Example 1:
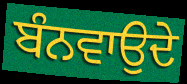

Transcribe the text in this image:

ਬੰਨਵਾਉਦੇ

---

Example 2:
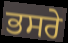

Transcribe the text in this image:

ਭਸਰੇ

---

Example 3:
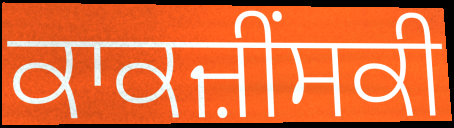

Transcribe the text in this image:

ਕਾਕਜ਼ੀੰਸਕੀ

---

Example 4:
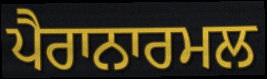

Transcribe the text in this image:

ਪੈਰਾਨਾਰਮਲ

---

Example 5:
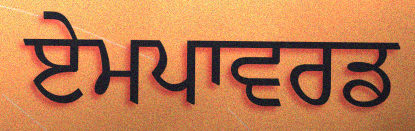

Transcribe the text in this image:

ਏਮਪਾਵਰਡ